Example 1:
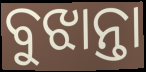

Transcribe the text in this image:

ବୁଝାନ୍ତା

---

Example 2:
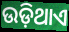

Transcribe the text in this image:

ଉଡ଼ିଥାଏ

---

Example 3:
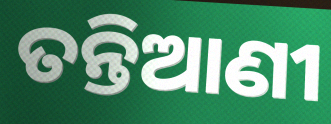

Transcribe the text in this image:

ତନ୍ତିଆଣୀ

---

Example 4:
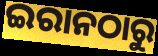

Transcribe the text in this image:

ଇରାନଠାରୁ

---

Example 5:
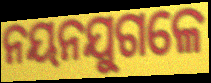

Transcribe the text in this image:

ନୟନଯୁଗଳେ